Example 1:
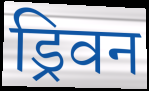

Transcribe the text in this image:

ड्रिवन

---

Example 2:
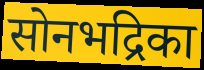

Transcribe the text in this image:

सोनभद्रिका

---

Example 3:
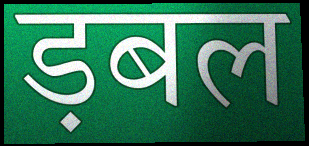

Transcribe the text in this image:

ड़बल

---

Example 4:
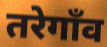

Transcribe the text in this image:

तरेगाँव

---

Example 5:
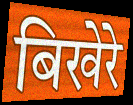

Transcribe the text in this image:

बिखेरे